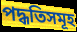
পদ্ধতিসমূহ